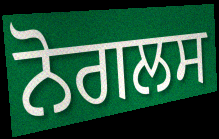
ਨੋਗਲਸ